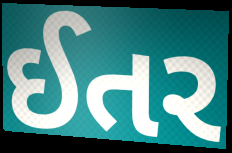
ઈતર